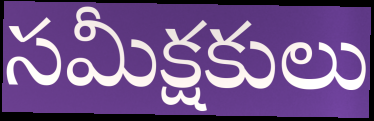
సమీక్షకులు